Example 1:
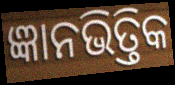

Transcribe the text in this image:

ଜ୍ଞାନଭିତ୍ତିକ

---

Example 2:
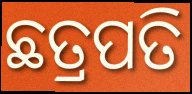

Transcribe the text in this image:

ଛତ୍ରପତି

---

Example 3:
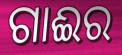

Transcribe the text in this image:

ଗାଈର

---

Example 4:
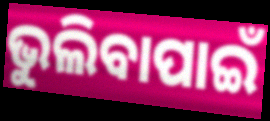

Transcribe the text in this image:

ଭୁଲିବାପାଇଁ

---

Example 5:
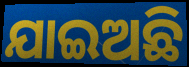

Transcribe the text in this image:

ଯାଇଅଛି